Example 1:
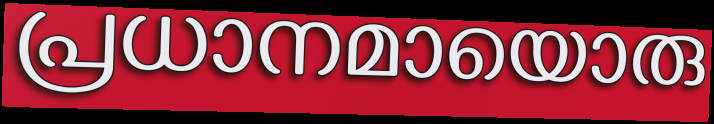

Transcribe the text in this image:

പ്രധാനമായൊരു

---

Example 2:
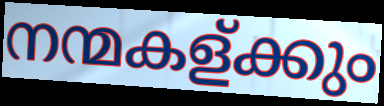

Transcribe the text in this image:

നന്മകള്ക്കും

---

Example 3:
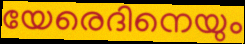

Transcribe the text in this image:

യേരെദിനെയും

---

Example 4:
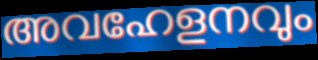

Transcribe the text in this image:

അവഹേളനവും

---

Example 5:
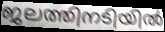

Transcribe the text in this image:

ജലത്തിനടിയിൽ